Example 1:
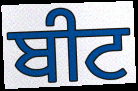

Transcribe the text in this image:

ਬੀਟ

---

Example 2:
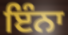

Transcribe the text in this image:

ਇੰਨਾ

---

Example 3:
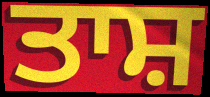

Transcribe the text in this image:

ਤਾਸ਼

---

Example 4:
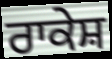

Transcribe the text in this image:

ਰਾਕੇਸ਼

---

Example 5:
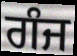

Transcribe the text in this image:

ਗੰਜ